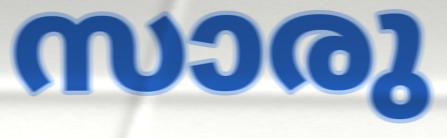
സാരു